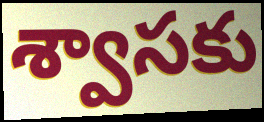
శ్వాసకు